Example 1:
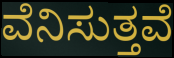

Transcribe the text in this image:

ವೆನಿಸುತ್ತವೆ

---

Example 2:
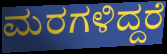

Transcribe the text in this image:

ಮರಗಳಿದ್ದರೆ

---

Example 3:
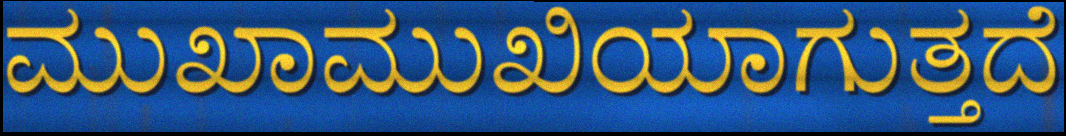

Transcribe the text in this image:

ಮುಖಾಮುಖಿಯಾಗುತ್ತದೆ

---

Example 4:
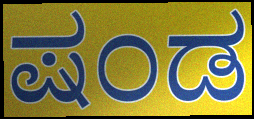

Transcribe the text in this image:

ಷಂಡ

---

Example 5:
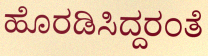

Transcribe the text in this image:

ಹೊರಡಿಸಿದ್ದರಂತೆ